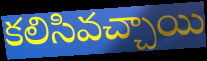
కలిసివచ్చాయి